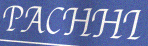
PACHHI